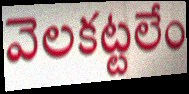
వెలకట్టలేం